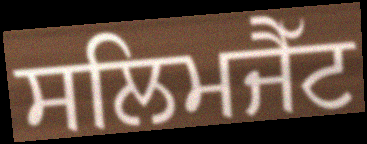
ਸਲਿਮਜੈੱਟ